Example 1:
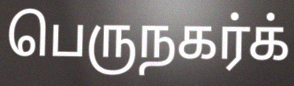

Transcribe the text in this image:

பெருநகர்க்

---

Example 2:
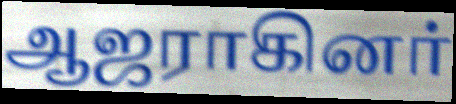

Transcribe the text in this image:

ஆஜராகினர்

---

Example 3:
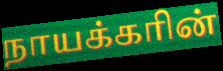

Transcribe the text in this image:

நாயக்கரின்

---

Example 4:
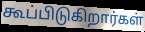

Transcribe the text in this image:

கூப்பிடுகிறார்கள்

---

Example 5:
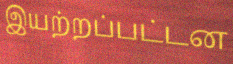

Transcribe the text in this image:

இயற்றப்பட்டன